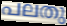
പലതു